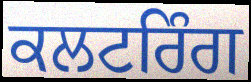
ਕਲਟਰਿੰਗ